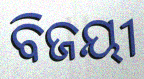
ବିଜୟୀ